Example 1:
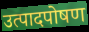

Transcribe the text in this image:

उत्पादपोषण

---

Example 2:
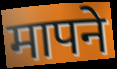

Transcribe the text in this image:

मापने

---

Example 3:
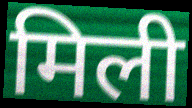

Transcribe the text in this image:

मिली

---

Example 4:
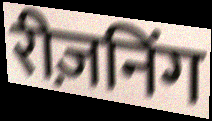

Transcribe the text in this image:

रीज़निंग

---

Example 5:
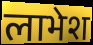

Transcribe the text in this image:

लाभेश